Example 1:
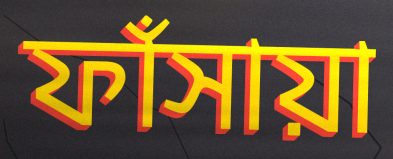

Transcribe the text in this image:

ফাঁসায়া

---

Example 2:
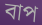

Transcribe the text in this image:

বাপ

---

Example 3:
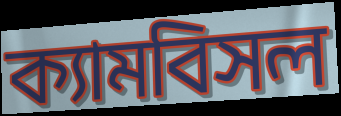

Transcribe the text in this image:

ক্যামবিসল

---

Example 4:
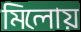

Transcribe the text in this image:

মিলোয়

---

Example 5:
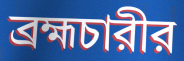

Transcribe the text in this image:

ব্রহ্মচারীর